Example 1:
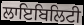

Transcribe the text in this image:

ਲਾਇਬਿਲਿਟੀ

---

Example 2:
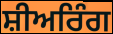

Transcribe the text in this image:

ਸ਼ੀਅਰਿੰਗ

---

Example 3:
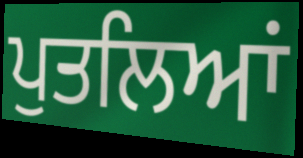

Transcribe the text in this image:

ਪੁਤਲਿਆਂ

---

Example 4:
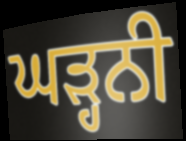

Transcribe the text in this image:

ਘੜ੍ਹਨੀ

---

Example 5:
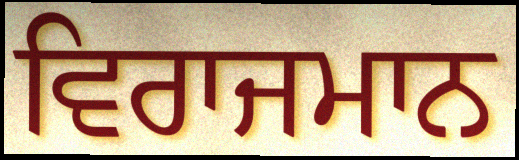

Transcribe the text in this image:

ਵਿਰਾਜਮਾਨ